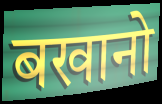
बखानो